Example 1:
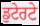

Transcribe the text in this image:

ਡੁਟੇਰਟੇ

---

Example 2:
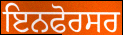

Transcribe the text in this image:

ਇਨਫੋਰਸਰ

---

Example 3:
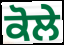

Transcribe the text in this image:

ਕੋਲੇ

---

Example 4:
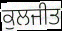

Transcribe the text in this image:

ਕੁਲਜੀਤ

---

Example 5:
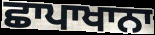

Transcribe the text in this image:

ਛਾਪਾਖਾਨਾ